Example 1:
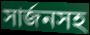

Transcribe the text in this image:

সার্জনসহ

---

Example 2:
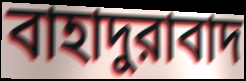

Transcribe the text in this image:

বাহাদুরাবাদ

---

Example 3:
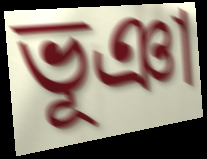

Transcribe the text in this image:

ভূঞা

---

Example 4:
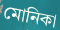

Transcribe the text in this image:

মোনিকা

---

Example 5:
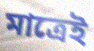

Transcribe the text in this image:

মাত্রেই